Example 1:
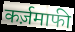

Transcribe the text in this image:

कर्ज़माफी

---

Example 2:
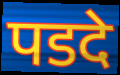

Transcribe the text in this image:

पडदे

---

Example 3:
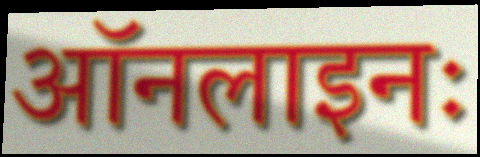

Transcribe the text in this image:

ऑनलाइनः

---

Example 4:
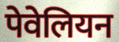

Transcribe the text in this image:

पेवेलियन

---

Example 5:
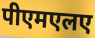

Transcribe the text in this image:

पीएमएलए